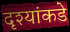
दृश्यांकडे